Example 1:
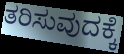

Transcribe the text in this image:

ತರಿಸುವುದಕ್ಕೆ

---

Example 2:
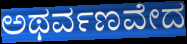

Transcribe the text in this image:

ಅಥರ್ವಣವೇದ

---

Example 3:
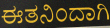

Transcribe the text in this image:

ಈತನಿಂದಾಗಿ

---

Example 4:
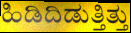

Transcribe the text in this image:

ಹಿಡಿದಿಡುತ್ತಿತ್ತು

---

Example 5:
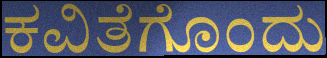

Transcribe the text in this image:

ಕವಿತೆಗೊಂದು